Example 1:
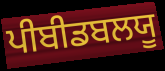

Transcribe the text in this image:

ਪੀਬੀਡਬਲਯੂ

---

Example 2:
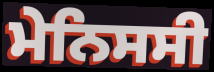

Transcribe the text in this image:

ਮੇਨਿਸਸੀ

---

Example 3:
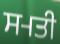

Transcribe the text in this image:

ਸ੍ਮਤੀ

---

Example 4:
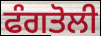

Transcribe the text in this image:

ਫੰਗਤੋਲੀ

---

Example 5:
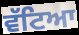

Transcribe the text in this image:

ਵੱਟਿਆ